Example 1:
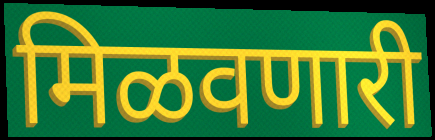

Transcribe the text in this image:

मिळवणारी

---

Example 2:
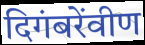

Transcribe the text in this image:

दिगंबरेंवीण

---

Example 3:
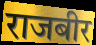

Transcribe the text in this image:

राजबीर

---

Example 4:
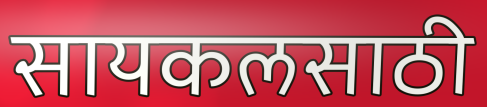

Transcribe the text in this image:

सायकलसाठी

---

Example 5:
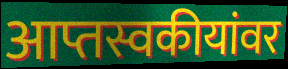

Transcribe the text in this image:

आप्तस्वकीयांवर